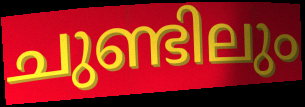
ചുണ്ടിലും